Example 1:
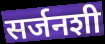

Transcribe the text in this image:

सर्जनशी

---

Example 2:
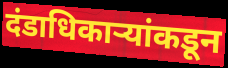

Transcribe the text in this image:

दंडाधिकाऱ्यांकडून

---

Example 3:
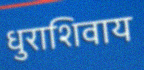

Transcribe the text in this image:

धुराशिवाय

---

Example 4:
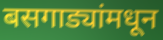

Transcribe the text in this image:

बसगाड्यांमधून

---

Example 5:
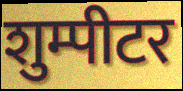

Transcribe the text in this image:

शुम्पीटर